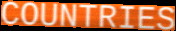
COUNTRIES